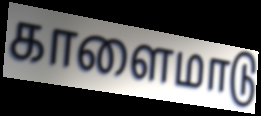
காளைமாடு